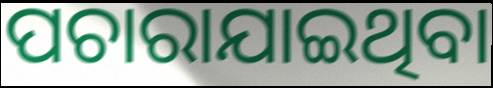
ପଚାରାଯାଇଥିବା